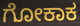
ಗೋಕಾಕ